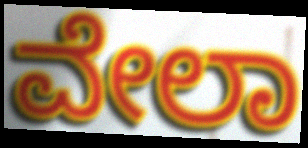
ವೇಲಾ